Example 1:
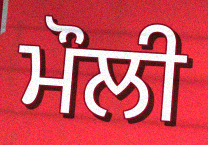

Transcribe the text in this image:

ਮੌਲੀ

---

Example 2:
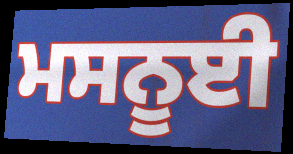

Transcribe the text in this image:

ਮਸਨੂਈ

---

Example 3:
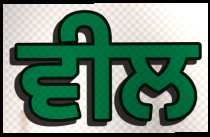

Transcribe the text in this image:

ਵੀਲ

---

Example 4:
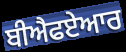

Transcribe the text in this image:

ਬੀਐਫਏਆਰ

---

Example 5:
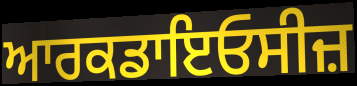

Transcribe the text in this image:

ਆਰਕਡਾਇਓਸੀਜ਼